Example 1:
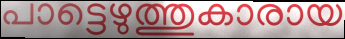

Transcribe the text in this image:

പാട്ടെഴുത്തുകാരായ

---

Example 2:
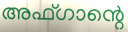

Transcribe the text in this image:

അഫ്ഗാന്റെ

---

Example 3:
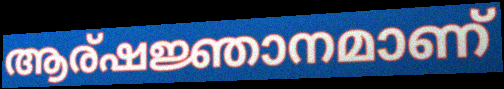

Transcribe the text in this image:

ആര്ഷജ്ഞാനമാണ്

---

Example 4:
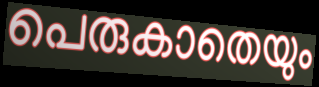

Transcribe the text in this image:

പെരുകാതെയും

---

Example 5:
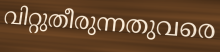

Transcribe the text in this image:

വിറ്റുതീരുന്നതുവരെ